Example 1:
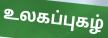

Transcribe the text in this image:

உலகப்புகழ்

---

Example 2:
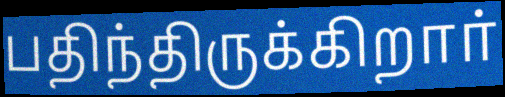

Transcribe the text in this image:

பதிந்திருக்கிறார்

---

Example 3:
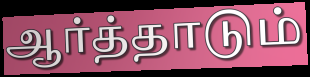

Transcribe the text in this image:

ஆர்த்தாடும்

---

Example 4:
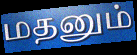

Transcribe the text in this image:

மதனும்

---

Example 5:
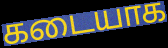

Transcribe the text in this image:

கடையாக